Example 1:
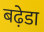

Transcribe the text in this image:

बढ़ेडा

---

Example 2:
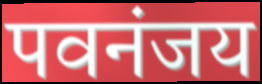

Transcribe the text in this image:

पवनंजय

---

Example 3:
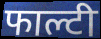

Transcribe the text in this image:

फाल्टी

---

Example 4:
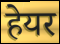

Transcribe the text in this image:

हेयर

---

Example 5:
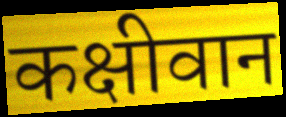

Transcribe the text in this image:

कक्षीवान